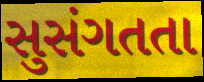
સુસંગતતા